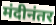
मंदीनंतर